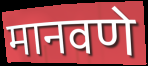
मानवणे